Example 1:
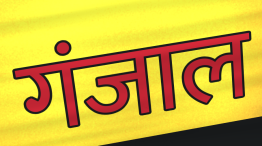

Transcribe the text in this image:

गंजाल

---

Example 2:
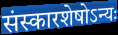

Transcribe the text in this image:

संस्कारशेषोऽन्यः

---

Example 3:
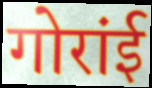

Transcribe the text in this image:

गोरांई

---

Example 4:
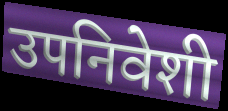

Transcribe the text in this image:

उपनिवेशी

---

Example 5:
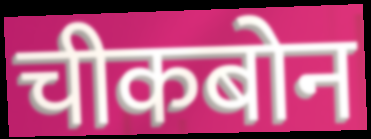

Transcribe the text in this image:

चीकबोन